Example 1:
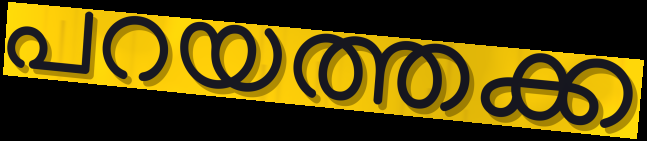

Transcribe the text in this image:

പറയത്തക്ക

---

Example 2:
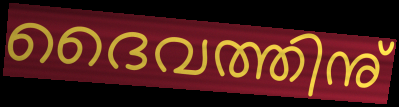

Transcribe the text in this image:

ദൈവത്തിനു്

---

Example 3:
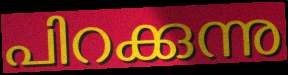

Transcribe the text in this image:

പിറക്കുന്നു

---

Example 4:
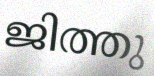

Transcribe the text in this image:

ജിത്തു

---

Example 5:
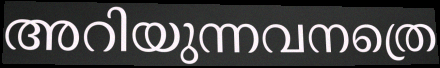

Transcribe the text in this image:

അറിയുന്നവനത്രെ